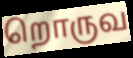
றொருவ